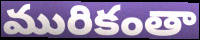
మురికంతా